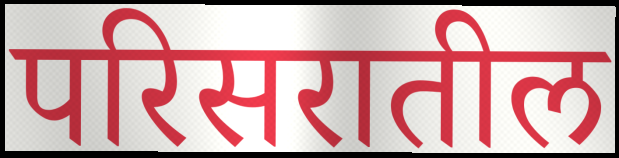
परिसरातील